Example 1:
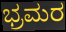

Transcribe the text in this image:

ಭ್ರಮರ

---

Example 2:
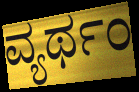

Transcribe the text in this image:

ವ್ಯರ್ಥಂ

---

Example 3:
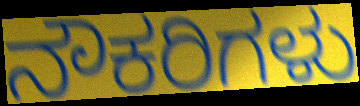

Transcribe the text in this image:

ನೌಕರಿಗಳು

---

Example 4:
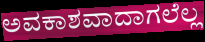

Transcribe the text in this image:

ಅವಕಾಶವಾದಾಗಲೆಲ್ಲ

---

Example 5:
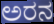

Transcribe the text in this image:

ಅರನ